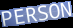
PERSON